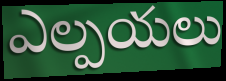
ఎల్పయలు